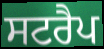
ਸਟਰੈਪ